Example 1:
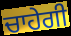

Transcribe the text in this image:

ਚਾਹੇਗੀ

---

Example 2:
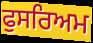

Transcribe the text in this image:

ਫੁਸਰਿਅਮ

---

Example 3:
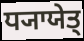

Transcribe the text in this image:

ਧ੍ਯਾਯੇਤ੍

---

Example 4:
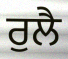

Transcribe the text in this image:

ਰੁਲੈ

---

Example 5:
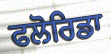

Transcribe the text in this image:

ਫਲੋਰਿਡਾ